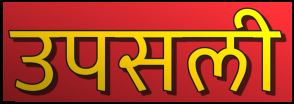
उपसली